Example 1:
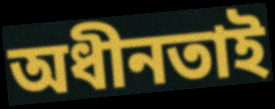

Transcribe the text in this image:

অধীনতাই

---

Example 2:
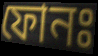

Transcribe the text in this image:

ফোনঃ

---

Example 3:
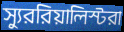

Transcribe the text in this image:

স্যুররিয়ালিস্টরা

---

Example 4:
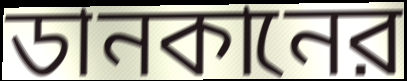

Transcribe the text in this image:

ডানকানের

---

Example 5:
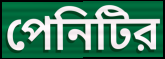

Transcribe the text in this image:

পেনিটির